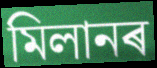
মিলানৰ